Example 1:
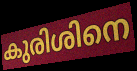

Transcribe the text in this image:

കുരിശിനെ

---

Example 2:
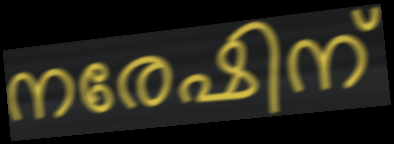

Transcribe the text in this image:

നരേഷിന്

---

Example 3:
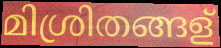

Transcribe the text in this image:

മിശ്രിതങ്ങള്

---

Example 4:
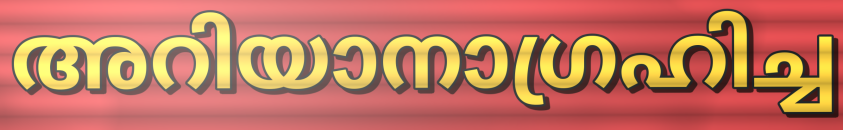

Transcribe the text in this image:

അറിയാനാഗ്രഹിച്ച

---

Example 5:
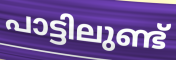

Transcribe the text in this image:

പാട്ടിലുണ്ട്